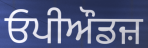
ਓਪੀਔਡਜ਼